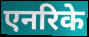
एनरिके